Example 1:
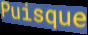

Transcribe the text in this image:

Puisque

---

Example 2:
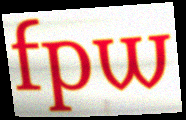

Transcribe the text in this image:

fpw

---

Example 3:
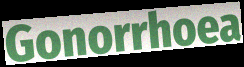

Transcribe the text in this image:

Gonorrhoea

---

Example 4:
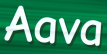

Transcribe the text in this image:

Aava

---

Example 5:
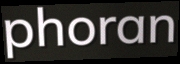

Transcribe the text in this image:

phoran